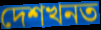
দেশখনত